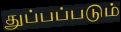
துப்பப்படும்